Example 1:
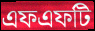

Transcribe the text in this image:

এফএফটি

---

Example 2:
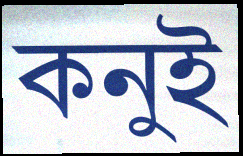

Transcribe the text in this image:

কনুই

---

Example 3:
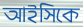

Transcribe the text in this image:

আইসিকে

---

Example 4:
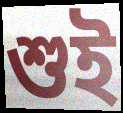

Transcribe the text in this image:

শুই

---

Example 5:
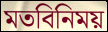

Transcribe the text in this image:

মতবিনিময়